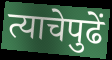
त्याचेपुढें